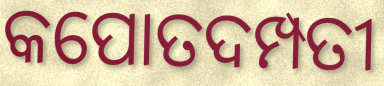
କପୋତଦମ୍ପତୀ